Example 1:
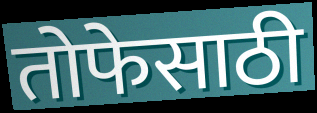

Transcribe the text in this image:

तोफेसाठी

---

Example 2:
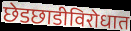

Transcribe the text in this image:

छेडछाडीविरोधात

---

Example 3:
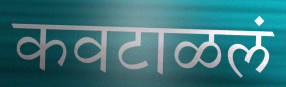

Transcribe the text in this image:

कवटाळलं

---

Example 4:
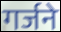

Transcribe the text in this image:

गर्जने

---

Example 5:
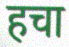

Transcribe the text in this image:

हचा